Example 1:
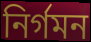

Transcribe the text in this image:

নিৰ্গমন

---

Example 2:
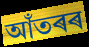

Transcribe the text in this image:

আঁতৰৰ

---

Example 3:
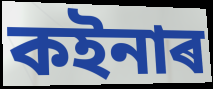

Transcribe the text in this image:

কইনাৰ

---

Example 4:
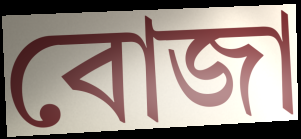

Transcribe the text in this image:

বোজা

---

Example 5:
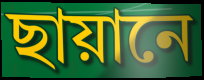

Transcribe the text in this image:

ছায়ানে